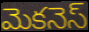
మెకనెస్